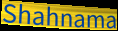
Shahnama